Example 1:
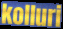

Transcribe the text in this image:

kolluri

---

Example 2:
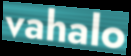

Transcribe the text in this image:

vahalo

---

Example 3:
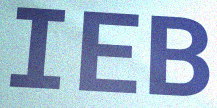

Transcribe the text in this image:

IEB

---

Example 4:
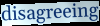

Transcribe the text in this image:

disagreeing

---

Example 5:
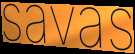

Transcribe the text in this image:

savas